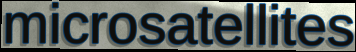
microsatellites